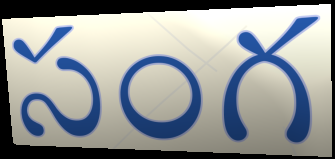
సంగ